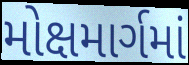
મોક્ષમાર્ગમાં